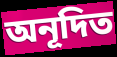
অনূদিত